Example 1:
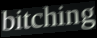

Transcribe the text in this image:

bitching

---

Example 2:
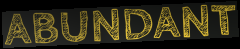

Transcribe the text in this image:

ABUNDANT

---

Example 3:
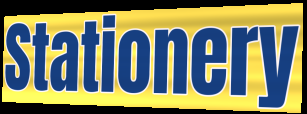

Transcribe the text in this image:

Stationery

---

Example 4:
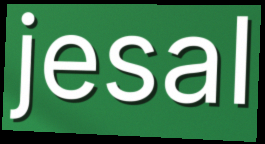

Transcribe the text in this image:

jesal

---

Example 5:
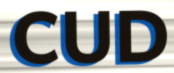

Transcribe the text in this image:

CUD